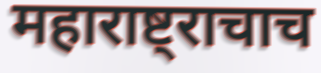
महाराष्ट्राचाच